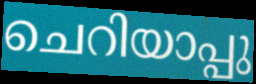
ചെറിയാപ്പു